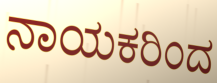
ನಾಯಕರಿಂದ